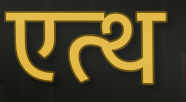
एत्थ